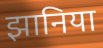
झानिया